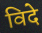
विदे